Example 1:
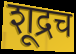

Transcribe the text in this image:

शूद्रच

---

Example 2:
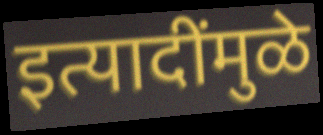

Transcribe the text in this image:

इत्यादींमुळे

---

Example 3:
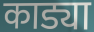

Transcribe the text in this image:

काड्या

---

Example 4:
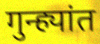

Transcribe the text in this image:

गुन्ह्यांत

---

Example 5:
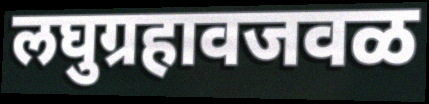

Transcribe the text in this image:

लघुग्रहावजवळ